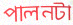
পালনটা